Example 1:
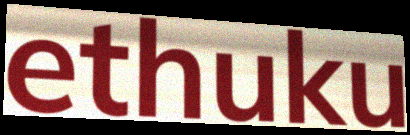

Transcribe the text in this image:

ethuku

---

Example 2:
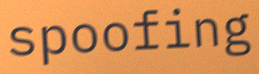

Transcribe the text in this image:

spoofing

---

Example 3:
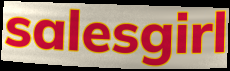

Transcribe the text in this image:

salesgirl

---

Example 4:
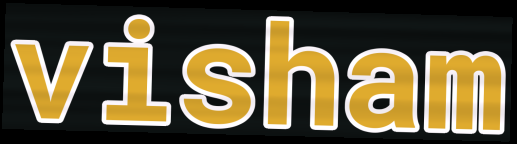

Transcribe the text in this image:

visham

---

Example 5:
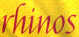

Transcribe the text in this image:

rhinos